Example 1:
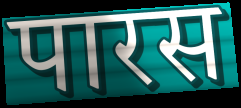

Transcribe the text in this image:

पारस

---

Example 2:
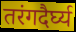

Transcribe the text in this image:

तरंगदैर्घ्य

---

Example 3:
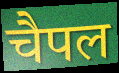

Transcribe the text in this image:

चैपल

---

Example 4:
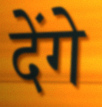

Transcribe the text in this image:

देंगे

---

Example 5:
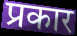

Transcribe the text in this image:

प्रकार